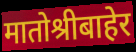
मातोश्रीबाहेर